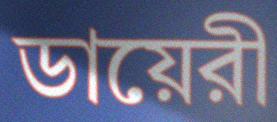
ডায়েরী